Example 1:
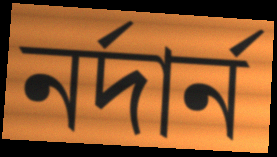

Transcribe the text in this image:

নর্দার্ন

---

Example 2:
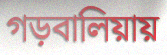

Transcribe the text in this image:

গড়বালিয়ায়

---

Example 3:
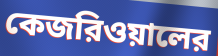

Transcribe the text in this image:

কেজরিওয়ালের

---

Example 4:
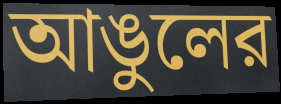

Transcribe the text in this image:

আঙুলের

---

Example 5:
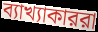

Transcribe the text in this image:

ব্যাখ্যাকাররা